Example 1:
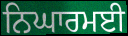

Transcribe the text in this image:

ਨਿਘਾਰਮਈ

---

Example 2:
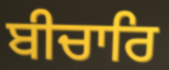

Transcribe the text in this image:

ਬੀਚਾਰਿ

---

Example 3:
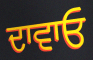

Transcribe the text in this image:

ਦਾਵਾਓ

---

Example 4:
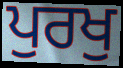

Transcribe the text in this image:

ਪੁਰਖੁ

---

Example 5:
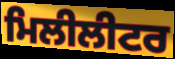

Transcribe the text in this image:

ਮਿਲੀਲੀਟਰ